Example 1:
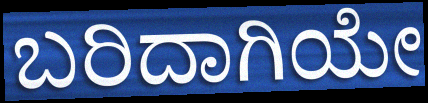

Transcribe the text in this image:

ಬರಿದಾಗಿಯೇ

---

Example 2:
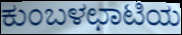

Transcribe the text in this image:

ಕುಂಬಳಛಾಟಿಯ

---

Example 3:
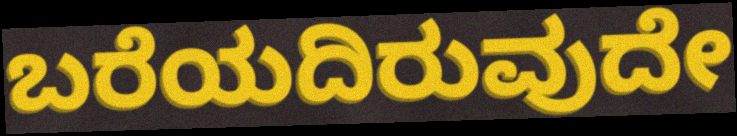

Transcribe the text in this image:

ಬರೆಯದಿರುವುದೇ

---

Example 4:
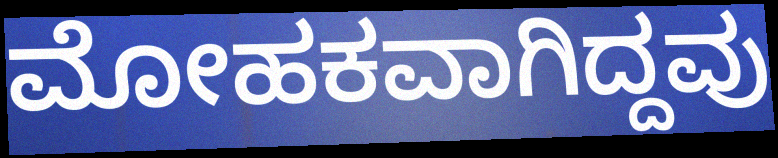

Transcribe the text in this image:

ಮೋಹಕವಾಗಿದ್ದವು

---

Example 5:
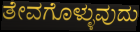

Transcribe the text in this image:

ತೇವಗೊಳ್ಳುವುದು